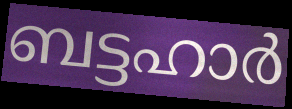
ബട്ടഹാർ